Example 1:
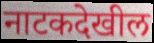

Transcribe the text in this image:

नाटकदेखील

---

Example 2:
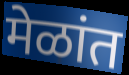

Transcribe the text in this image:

मेळांत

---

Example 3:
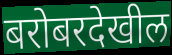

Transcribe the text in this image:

बरोबरदेखील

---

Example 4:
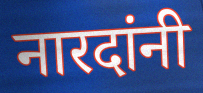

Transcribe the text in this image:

नारदांनी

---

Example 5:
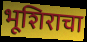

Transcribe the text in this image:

भूशिराचा